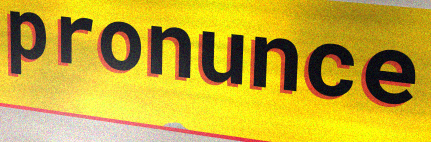
pronunce